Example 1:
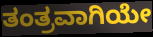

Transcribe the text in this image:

ತಂತ್ರವಾಗಿಯೇ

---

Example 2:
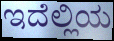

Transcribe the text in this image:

ಇದೆಲ್ಲಿಯ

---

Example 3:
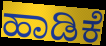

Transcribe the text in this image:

ಹಾಡಿಕೆ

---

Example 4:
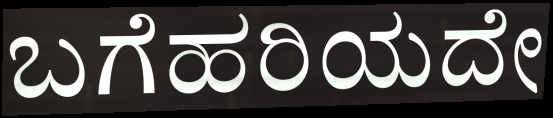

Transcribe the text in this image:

ಬಗೆಹರಿಯದೇ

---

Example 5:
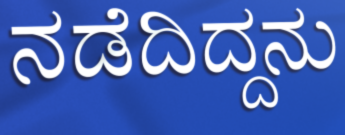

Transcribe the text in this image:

ನಡೆದಿದ್ದನು